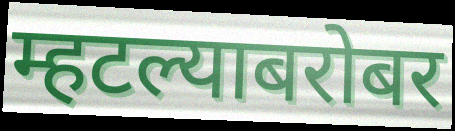
म्हटल्याबरोबर